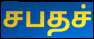
சபதச்